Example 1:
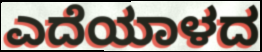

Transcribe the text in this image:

ಎದೆಯಾಳದ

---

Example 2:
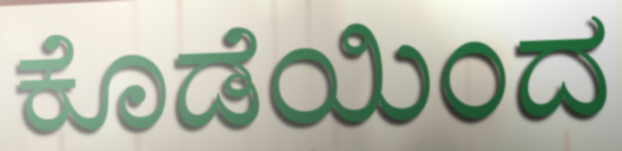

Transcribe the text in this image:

ಕೊಡೆಯಿಂದ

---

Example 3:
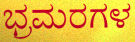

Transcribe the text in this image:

ಭ್ರಮರಗಳ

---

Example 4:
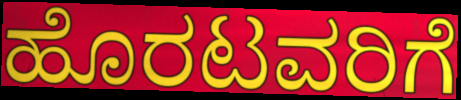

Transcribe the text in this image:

ಹೊರಟವರಿಗೆ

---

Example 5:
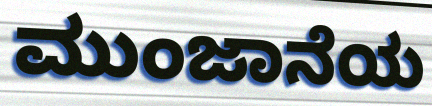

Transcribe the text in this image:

ಮುಂಜಾನೆಯ